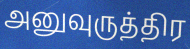
அனுவுருத்திர